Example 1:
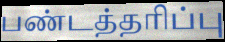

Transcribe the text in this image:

பண்டத்தரிப்பு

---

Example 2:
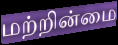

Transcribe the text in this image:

மற்றின்மை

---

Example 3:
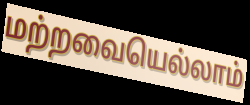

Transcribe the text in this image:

மற்றவையெல்லாம்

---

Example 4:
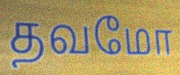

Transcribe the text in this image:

தவமோ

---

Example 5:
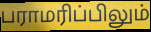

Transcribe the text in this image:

பராமரிப்பிலும்